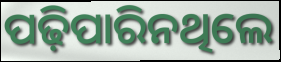
ପଢ଼ିପାରିନଥିଲେ